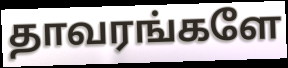
தாவரங்களே